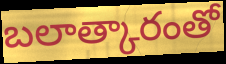
బలాత్కారంతో